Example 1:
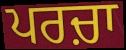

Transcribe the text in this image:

ਪਰਚ਼ਾ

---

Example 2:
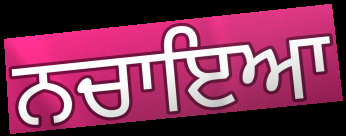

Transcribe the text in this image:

ਨਚਾਇਆ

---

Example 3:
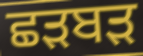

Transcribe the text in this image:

ਛੜਬੜ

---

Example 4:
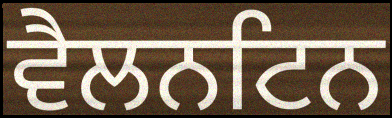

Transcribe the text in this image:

ਵੈਲਨਟਿਨ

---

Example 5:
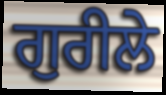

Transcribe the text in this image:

ਗੁਰੀਲੇ